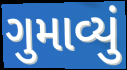
ગુમાવ્યું